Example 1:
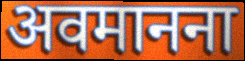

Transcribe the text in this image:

अवमानना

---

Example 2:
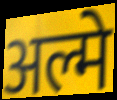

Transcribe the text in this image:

अल्मे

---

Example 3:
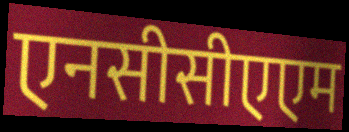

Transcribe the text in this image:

एनसीसीएएम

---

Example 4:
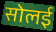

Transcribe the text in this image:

सोलई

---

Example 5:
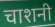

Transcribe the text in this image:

चाशनी